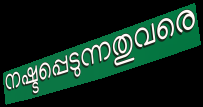
നഷ്ടപ്പെടുന്നതുവരെ